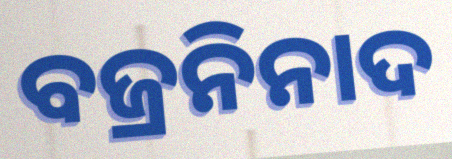
ବଜ୍ରନିନାଦ